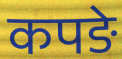
कपङे